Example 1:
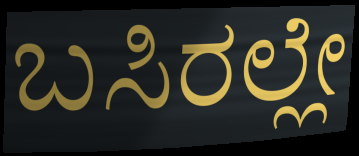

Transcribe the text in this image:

ಬಸಿರಲ್ಲೇ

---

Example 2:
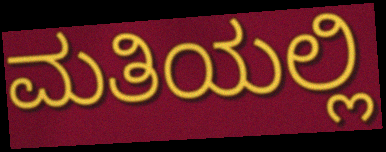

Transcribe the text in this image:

ಮತಿಯಲ್ಲಿ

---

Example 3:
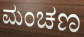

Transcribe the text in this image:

ಮಂಚಣ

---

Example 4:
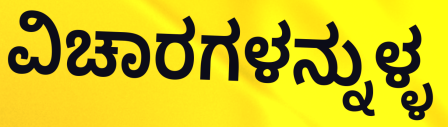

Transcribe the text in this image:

ವಿಚಾರಗಳನ್ನುಳ್ಳ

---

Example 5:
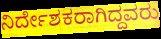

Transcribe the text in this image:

ನಿರ್ದೇಶಕರಾಗಿದ್ದವರು